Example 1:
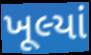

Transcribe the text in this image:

ખૂલ્યાં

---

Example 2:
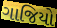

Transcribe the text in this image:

ગાજિયો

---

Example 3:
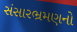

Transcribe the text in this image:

સંસારભ્રમણનો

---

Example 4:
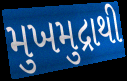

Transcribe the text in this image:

મુખમુદ્રાથી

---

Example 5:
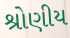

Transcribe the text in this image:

શ્રોણીય